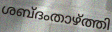
ശബ്ദംതാഴ്ത്തി